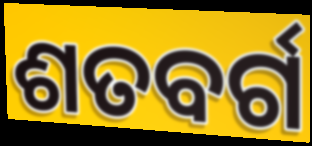
ଶତବର୍ଗ